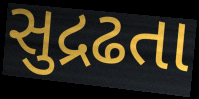
સુદ્રઢતા